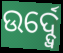
ଉର୍ଦ୍ଦ୍ୱେ